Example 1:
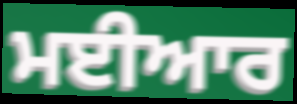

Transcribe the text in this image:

ਮਈਆਰ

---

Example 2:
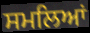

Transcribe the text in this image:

ਸਮਲਿਆਂ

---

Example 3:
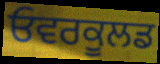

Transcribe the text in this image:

ਓਵਰਕੂਲਡ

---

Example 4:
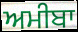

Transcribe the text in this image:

ਅਮੀਬਾ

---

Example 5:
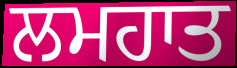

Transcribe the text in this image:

ਲਮਹਾਤ